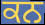
ਕਨ